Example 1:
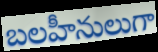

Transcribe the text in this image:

బలహీనులుగా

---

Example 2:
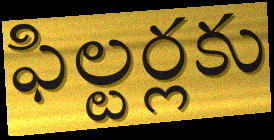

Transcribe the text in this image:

ఫిల్టర్లకు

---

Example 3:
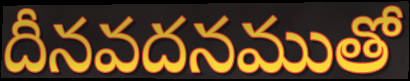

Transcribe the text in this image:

దీనవదనముతో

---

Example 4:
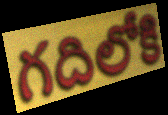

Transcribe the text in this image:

గదిలోకి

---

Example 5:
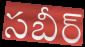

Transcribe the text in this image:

సబీర్